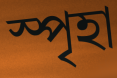
স্পৃহা